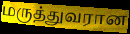
மருத்துவரான